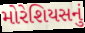
મોરેશિયસનું